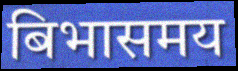
बिभासमय